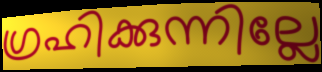
ഗ്രഹിക്കുന്നില്ലേ